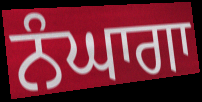
ਨੰਘਾਗਾ